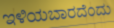
ಇಳಿಯಬಾರದೆಂದು